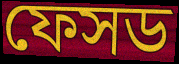
ফেসড